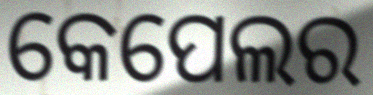
କେପେଲର